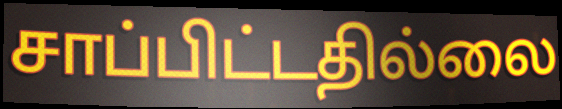
சாப்பிட்டதில்லை